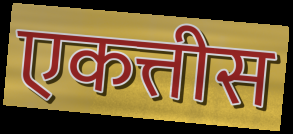
एकत्तीस